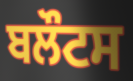
ਬਲੌਟਸ